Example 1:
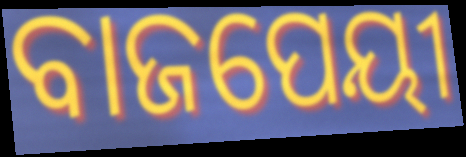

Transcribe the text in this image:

ବାଜପେୟୀ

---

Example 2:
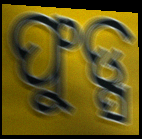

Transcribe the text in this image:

ଫୁଡ୍ସ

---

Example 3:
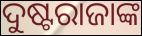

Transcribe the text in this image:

ଦୁଷ୍ଟରାଜାଙ୍କ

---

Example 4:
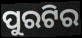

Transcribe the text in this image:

ପୁରଟିର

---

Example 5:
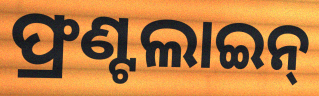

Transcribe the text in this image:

ଫ୍ରଣ୍ଟଲାଇନ୍